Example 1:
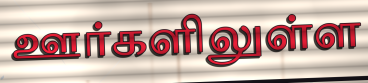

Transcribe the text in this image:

ஊர்களிலுள்ள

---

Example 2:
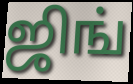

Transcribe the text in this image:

ஜிங்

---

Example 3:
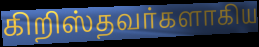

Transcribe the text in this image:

கிறிஸ்தவர்களாகிய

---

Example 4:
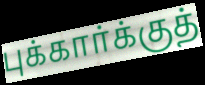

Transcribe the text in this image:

புக்கார்க்குத்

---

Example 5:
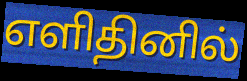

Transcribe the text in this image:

எளிதினில்